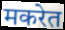
मकरेत